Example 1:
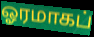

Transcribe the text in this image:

ஓரமாகப்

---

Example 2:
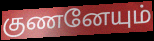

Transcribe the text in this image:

குணனேயும்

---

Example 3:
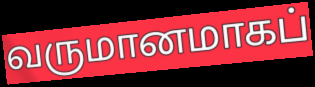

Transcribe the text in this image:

வருமானமாகப்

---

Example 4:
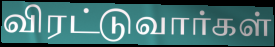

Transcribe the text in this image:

விரட்டுவார்கள்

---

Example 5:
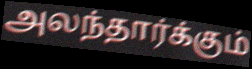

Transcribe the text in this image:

அலந்தார்க்கும்